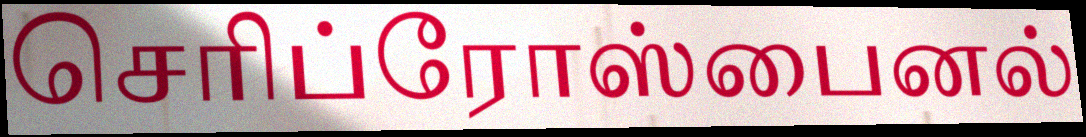
செரிப்ரோஸ்பைனல்